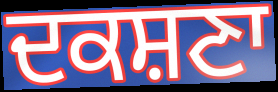
ਦਕਸ਼ਣਾ